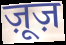
ज़ूज़